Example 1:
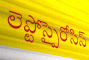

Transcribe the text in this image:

లెప్టోస్పైరోసిస్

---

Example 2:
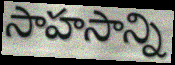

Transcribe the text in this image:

సాహసాన్ని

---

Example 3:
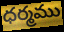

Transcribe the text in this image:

ధర్మము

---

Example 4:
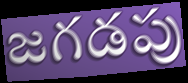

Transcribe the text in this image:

జగడపు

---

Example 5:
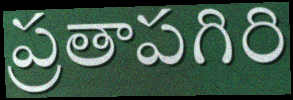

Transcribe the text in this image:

ప్రతాపగిరి